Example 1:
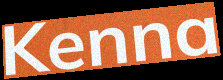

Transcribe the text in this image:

Kenna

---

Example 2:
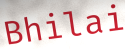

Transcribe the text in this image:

Bhilai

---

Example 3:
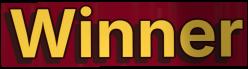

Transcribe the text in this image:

Winner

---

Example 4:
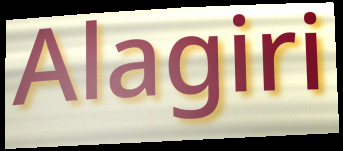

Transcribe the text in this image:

Alagiri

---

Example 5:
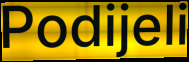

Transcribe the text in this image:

Podijeli